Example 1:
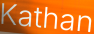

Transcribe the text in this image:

Kathan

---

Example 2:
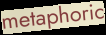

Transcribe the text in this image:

metaphoric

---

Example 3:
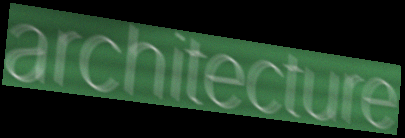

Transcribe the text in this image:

architecture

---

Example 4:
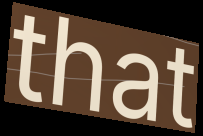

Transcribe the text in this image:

that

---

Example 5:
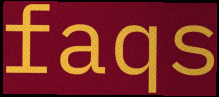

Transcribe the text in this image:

faqs